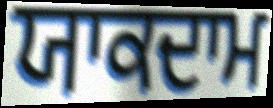
ਯਾਕਦਾਮ